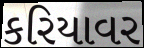
કરિયાવર